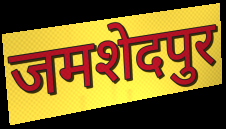
जमशेदपुर